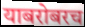
याबरोबरच